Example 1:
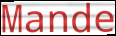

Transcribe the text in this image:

Mande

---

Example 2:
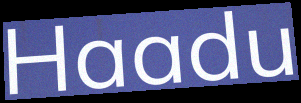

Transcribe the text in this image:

Haadu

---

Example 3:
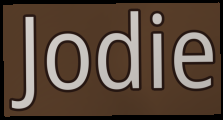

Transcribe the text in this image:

Jodie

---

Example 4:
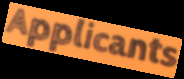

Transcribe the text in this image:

Applicants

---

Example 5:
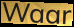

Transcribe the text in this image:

Waar